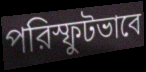
পরিস্ফুটভাবে